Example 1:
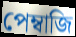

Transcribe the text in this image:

পেম্বাজি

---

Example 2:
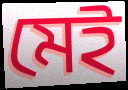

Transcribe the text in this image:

মেই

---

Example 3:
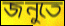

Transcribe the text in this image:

জনুতে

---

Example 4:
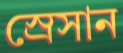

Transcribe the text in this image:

স্রেসান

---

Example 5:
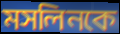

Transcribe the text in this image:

মসলিনকে